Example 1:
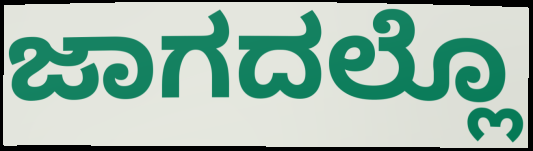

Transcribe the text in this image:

ಜಾಗದಲ್ಲೊ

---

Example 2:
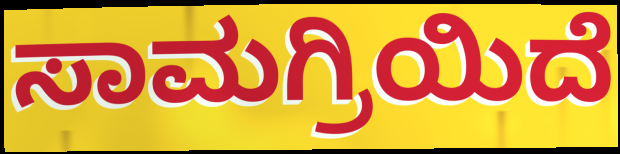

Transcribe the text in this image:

ಸಾಮಗ್ರಿಯಿದೆ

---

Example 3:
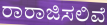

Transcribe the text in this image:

ರಾರಾಜಿಸಲಿವೆ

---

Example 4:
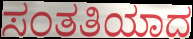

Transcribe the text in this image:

ಸಂತತಿಯಾದ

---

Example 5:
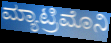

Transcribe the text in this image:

ಮ್ಯಾಟ್ರಿಮೊನಿ